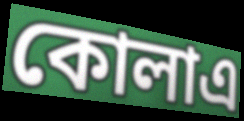
কোলাএ